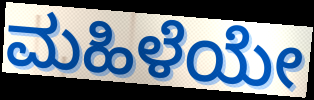
ಮಹಿಳೆಯೇ